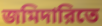
জমিদারিতে